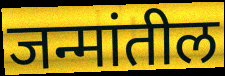
जन्मांतील